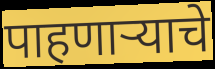
पाहणाऱ्याचे